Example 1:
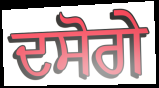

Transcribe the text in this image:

ਦਸੋਗੇ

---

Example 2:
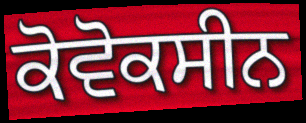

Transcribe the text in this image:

ਕੋਵੋਕਸੀਨ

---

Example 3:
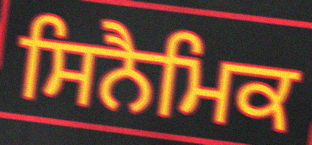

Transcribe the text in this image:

ਸਿਨੈਮਿਕ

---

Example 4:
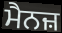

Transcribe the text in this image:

ਮੈਨਜ਼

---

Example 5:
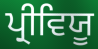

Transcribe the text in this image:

ਪ੍ਰੀਵਿਯੂ